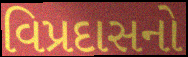
વિપ્રદાસનો